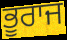
ਭੂਰਾਜ